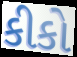
કીકો